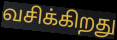
வசிக்கிறது